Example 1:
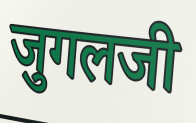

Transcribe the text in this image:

जुगलजी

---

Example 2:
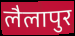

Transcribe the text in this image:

लैलापुर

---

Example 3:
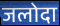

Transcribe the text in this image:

जलोदा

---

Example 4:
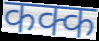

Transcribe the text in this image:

कक्क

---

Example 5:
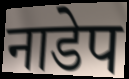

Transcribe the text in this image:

नाडेप